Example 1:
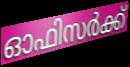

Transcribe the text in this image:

ഓഫിസർക്ക്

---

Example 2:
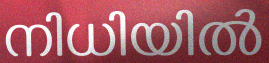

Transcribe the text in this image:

നിധിയിൽ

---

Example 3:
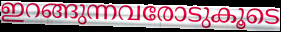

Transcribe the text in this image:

ഇറങ്ങുന്നവരോടുകൂടെ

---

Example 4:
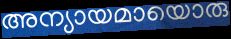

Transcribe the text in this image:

അന്യായമായൊരു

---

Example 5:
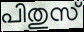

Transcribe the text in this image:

പിതുസ്